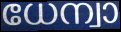
ധേന്വാ